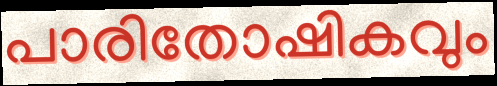
പാരിതോഷികവും